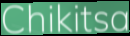
Chikitsa